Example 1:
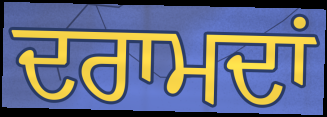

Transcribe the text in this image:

ਦਰਾਮਦਾਂ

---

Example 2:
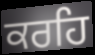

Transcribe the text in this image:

ਕਰਹਿ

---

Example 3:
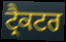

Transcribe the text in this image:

ਟ੍ਰੈਕਟਰ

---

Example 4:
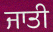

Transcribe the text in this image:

ਜਾਤੀ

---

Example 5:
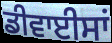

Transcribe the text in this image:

ਡੀਵਾਈਸਾਂ